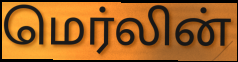
மெர்லின்